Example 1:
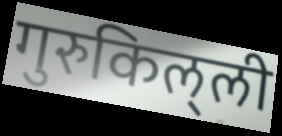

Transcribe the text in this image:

गुरुकिल्ली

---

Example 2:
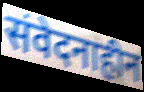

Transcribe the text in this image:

संवेदनाहीन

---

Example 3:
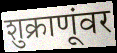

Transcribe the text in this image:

शुक्राणूंवर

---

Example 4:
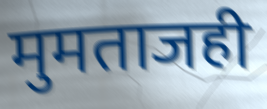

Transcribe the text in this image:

मुमताजही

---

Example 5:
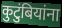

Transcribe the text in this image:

कुटुंबियांना